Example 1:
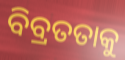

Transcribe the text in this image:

ବିବ୍ରତତାକୁ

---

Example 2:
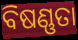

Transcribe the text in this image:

ବିଷଣ୍ଣତା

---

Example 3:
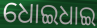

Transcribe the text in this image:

ଧୋଇଧାଇ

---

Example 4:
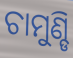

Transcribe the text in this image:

ଚାମୁଣ୍ଡି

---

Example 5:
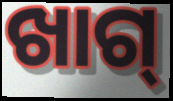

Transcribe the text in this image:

ଖାଗ୍